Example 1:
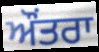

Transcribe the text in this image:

ਔਂਤਰਾ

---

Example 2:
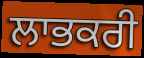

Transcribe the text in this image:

ਲਾਭਕਰੀ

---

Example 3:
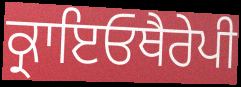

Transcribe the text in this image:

ਕ੍ਰਾਇਓਥੈਰੇਪੀ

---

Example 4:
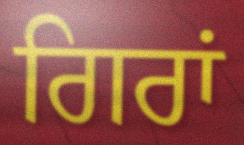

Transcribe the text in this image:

ਗਿਰਾਂ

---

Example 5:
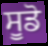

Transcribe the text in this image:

ਸੂਡੋ